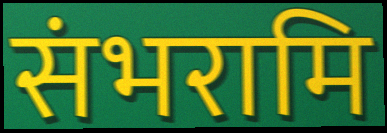
संभरामि